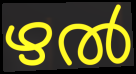
ഴൽ